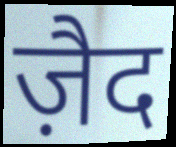
ज़ैद